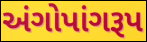
અંગોપાંગરૂપ